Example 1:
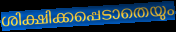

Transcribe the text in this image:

ശിക്ഷിക്കപ്പെടാതെയും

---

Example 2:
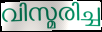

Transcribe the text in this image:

വിസ്മരിച്ച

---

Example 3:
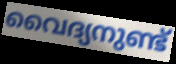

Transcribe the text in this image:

വൈദ്യനുണ്ട്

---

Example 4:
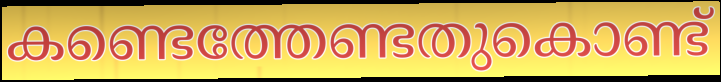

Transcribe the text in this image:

കണ്ടെത്തേണ്ടതുകൊണ്ട്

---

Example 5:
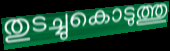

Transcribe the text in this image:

തുടച്ചുകൊടുത്തു